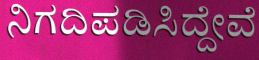
ನಿಗದಿಪಡಿಸಿದ್ದೇವೆ